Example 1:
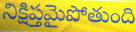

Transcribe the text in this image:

నిక్షిప్తమైపోతుంది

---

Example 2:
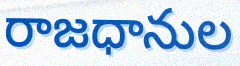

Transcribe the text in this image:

రాజధానుల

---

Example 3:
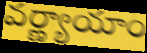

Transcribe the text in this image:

వర్ణ్యాయాం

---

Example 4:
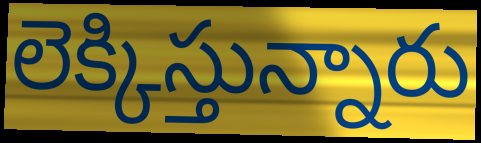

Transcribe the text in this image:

లెక్కిస్తున్నారు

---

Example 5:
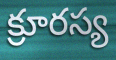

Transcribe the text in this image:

క్రూరస్య